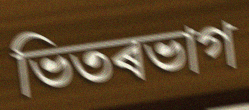
ভিতৰভাগ